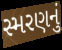
સ્મરણનું